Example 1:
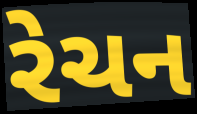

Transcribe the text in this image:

રેચન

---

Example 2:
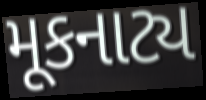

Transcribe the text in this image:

મૂકનાટ્ય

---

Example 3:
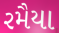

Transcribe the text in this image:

રમૈયા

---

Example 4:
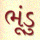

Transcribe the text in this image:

ભૂંડુ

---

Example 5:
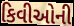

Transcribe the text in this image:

કિવીઓની